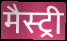
मैस्ट्री